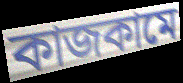
কাজকামে